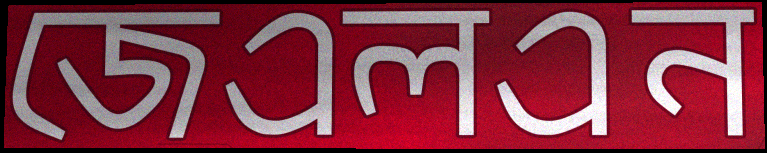
জেএলএন